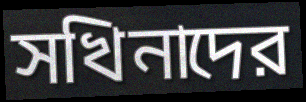
সখিনাদের